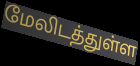
மேலிடத்துள்ள